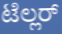
ಟೆಲ್ಲರ್